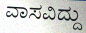
ವಾಸವಿದ್ದು